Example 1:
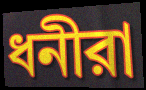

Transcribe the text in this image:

ধনীরা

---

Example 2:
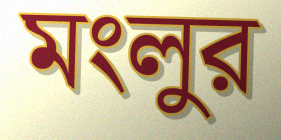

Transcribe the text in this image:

মংলুর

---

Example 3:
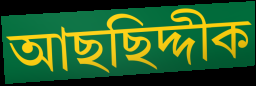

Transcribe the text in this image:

আছছিদ্দীক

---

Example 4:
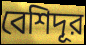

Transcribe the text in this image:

বেশিদূর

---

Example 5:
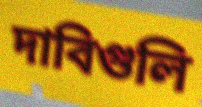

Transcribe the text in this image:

দাবিগুলি